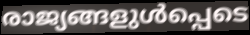
രാജ്യങ്ങളുൾപ്പെടെ